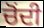
ਚੋੰਦੀ